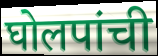
घोलपांची